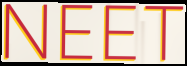
NEET